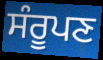
ਸੰਰੂਪਣ